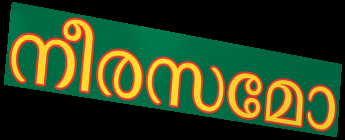
നീരസമോ